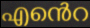
എൻെറ